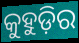
କୁହୁଡ଼ିର